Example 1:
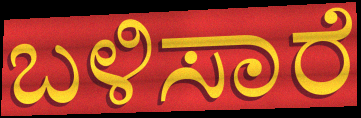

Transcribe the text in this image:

ಬಳಿಸಾರೆ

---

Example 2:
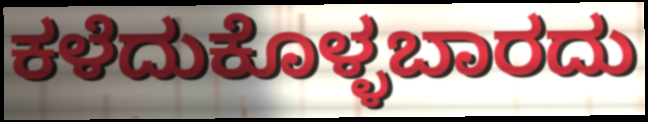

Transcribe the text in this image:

ಕಳೆದುಕೊಳ್ಳಬಾರದು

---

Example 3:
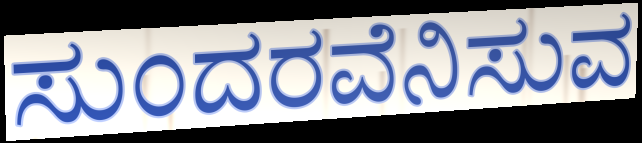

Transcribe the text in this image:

ಸುಂದರವೆನಿಸುವ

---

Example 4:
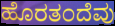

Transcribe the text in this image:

ಹೊರತಂದೆವು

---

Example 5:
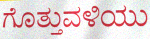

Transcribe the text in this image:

ಗೊತ್ತುವಳಿಯು